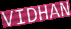
VIDHAN